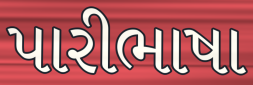
પારીભાષા